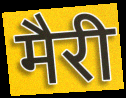
मैरी